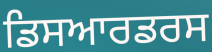
ਡਿਸਆਰਡਰਸ